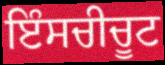
ਇੰਸਚੀਚੂਟ